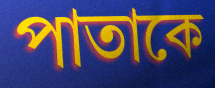
পাতাকে